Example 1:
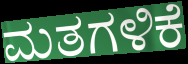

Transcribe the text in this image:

ಮತಗಳಿಕೆ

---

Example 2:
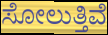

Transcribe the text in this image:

ಸೋಲುತ್ತಿವೆ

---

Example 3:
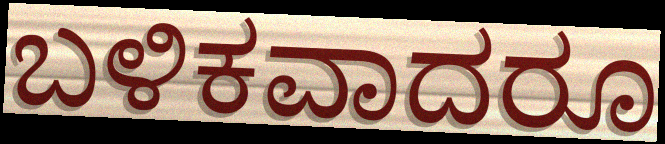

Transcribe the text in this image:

ಬಳಿಕವಾದರೂ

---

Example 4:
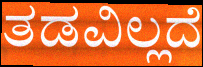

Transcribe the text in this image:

ತಡವಿಲ್ಲದೆ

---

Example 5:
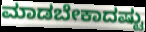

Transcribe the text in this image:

ಮಾಡಬೇಕಾದಷ್ಟು